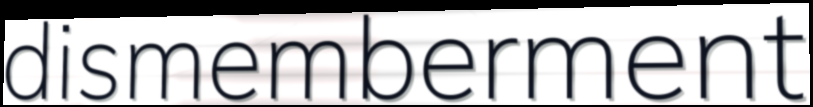
dismemberment